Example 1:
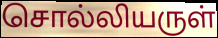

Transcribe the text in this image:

சொல்லியருள்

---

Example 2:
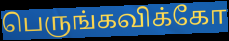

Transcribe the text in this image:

பெருங்கவிக்கோ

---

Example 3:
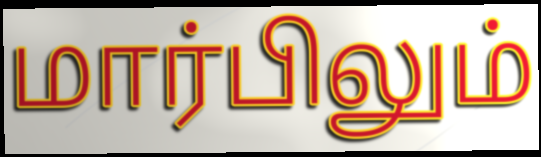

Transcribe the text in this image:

மார்பிலும்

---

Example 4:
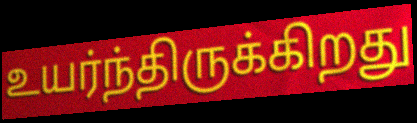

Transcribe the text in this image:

உயர்ந்திருக்கிறது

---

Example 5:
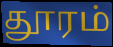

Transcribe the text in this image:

தூரம்